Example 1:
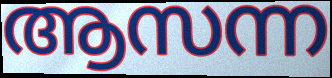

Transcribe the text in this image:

ആസന്ന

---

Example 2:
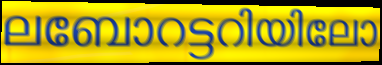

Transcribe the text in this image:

ലബോറട്ടറിയിലോ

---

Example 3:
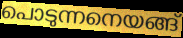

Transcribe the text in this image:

പൊടുന്നനെയങ്ങ്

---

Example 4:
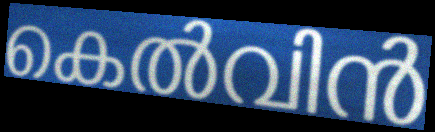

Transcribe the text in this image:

കെൽവിൻ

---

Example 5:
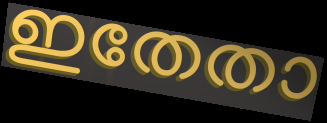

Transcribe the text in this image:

ഇതേതാ